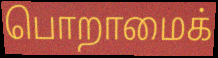
பொறாமைக்